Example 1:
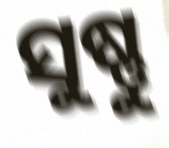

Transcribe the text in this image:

ସୁଷ୍ଣୁ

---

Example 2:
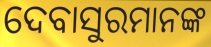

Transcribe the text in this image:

ଦେବାସୁରମାନଙ୍କ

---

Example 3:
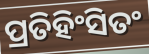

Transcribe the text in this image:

ପ୍ରତିହିଂସିତଂ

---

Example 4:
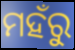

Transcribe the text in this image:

ମହଁରୁ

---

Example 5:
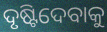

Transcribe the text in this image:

ଦୃଷ୍ଟିଦେବାକୁ